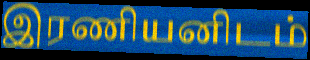
இரணியனிடம்